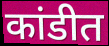
कांडीत